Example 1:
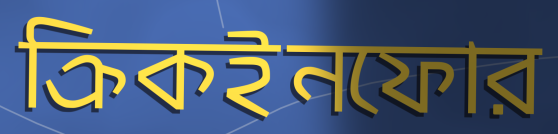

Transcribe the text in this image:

ক্রিকইনফোর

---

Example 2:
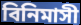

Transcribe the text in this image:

বিনিমাসী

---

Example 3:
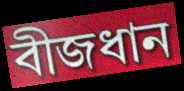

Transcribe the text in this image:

বীজধান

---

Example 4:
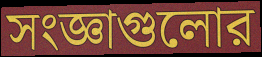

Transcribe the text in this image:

সংজ্ঞাগুলোর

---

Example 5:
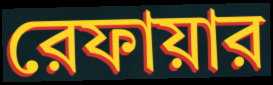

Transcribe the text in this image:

রেফায়ার